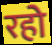
रहो